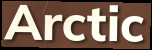
Arctic